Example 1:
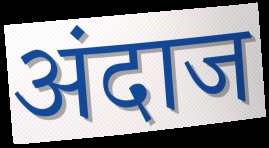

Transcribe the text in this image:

अंदाज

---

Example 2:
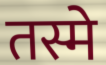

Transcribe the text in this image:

तस्मे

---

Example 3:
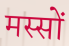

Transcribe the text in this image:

मस्सों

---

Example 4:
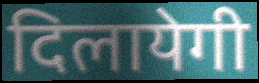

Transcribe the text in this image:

दिलायेगी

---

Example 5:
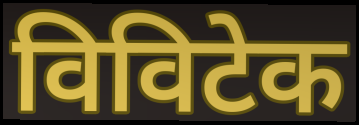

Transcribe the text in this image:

विविटेक